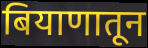
बियाणातून